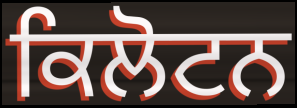
ਕਿਲੋਟਨ